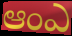
ఆంఎ